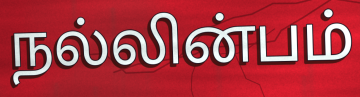
நல்லின்பம்